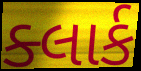
ક્લાર્ક